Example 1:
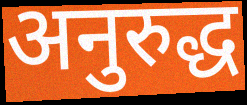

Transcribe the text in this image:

अनुरुद्ध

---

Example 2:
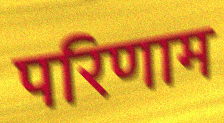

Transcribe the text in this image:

परिणाम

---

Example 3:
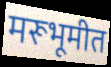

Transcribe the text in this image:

मरूभूमीत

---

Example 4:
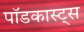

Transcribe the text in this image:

पॉडकास्ट्स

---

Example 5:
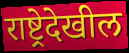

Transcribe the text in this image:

राष्ट्रेदेखील